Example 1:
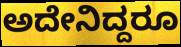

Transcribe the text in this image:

ಅದೇನಿದ್ದರೂ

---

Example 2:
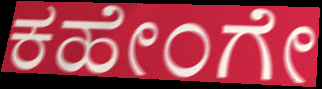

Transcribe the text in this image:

ಕಹೇಂಗೇ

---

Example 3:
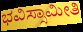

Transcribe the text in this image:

ಭವಿಸ್ಸಾಮೀತಿ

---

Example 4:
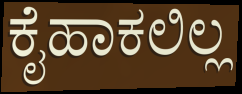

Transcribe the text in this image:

ಕೈಹಾಕಲಿಲ್ಲ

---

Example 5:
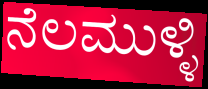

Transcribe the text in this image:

ನೆಲಮುಳ್ಳಿ